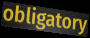
obligatory